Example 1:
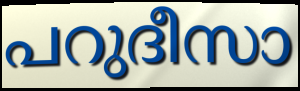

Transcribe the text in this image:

പറുദീസാ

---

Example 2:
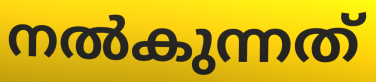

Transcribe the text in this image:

നൽകുന്നത്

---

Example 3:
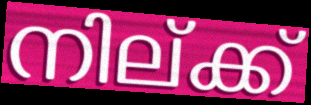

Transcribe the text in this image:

നില്ക്ക്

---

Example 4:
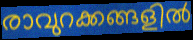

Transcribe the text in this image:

രാവുറക്കങ്ങളിൽ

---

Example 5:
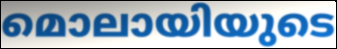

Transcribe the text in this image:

മൊലായിയുടെ